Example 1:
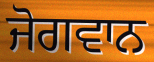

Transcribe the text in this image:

ਜੋਗਵਾਨ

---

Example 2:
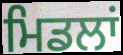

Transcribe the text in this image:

ਮਿਡਲਾਂ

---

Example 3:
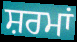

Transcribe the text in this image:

ਸ਼ਰਮਾਂ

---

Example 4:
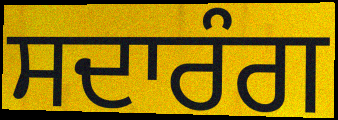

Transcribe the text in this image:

ਸਦਾਰੰਗ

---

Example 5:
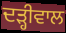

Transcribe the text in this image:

ਦੜ੍ਹੀਵਾਲ